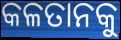
କଳତାନକୁ